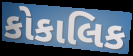
કોકાલિક